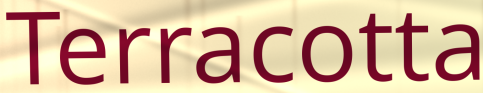
Terracotta